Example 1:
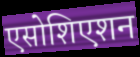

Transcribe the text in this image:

एसोशिएशन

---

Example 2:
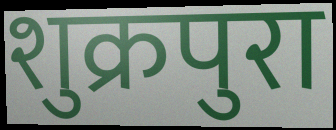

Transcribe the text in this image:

शुक्रपुरा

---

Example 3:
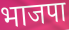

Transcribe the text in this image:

भाजपा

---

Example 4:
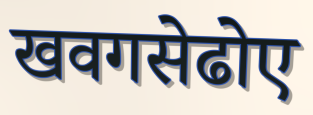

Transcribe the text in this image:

खवगसेढोए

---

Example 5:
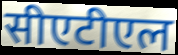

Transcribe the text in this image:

सीएटीएल